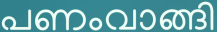
പണംവാങ്ങി